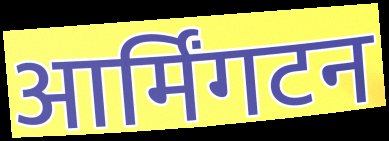
आर्मिंगटन